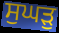
ਸੁਘੜੁ